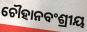
ଚୌହାନବଂଶ୍ରୀୟ